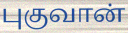
புகுவான்